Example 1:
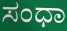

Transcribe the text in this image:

ಸಂಧಾ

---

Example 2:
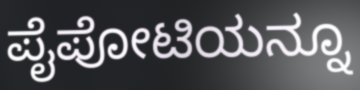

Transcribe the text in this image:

ಪೈಪೋಟಿಯನ್ನೂ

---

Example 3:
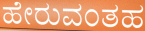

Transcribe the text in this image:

ಹೇರುವಂತಹ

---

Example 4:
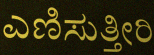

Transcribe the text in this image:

ಎಣಿಸುತ್ತೀರಿ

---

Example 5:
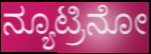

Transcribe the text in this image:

ನ್ಯೂಟ್ರಿನೋ